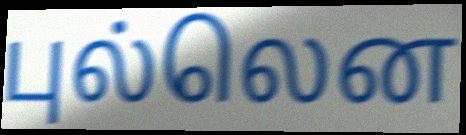
புல்லென